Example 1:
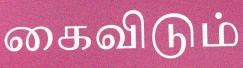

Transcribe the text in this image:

கைவிடும்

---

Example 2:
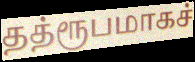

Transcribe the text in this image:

தத்ரூபமாகச்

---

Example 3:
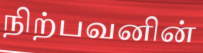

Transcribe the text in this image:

நிற்பவனின்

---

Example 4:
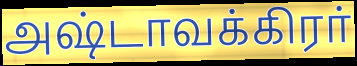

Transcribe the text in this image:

அஷ்டாவக்கிரர்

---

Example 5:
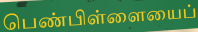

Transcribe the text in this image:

பெண்பிள்ளையைப்